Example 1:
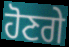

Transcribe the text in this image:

ਹੋਣਗੇ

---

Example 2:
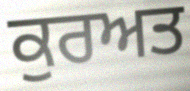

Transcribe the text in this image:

ਕੁਰਅਤ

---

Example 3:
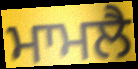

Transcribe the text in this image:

ਮਾਮਲੈ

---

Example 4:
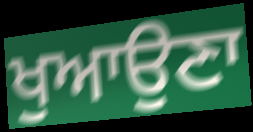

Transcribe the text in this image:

ਖੁਆਉਣਾ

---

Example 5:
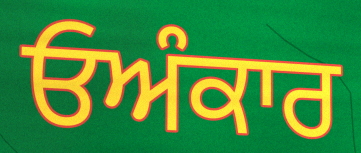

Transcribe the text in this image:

ਓਅੰਕਾਰ